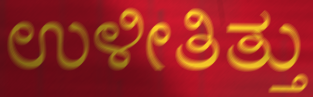
ಉಳೀತಿತ್ತು